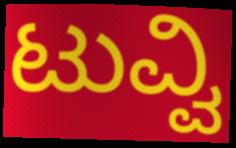
ಟುವ್ವಿ